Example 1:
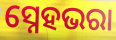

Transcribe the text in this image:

ସ୍ନେହଭରା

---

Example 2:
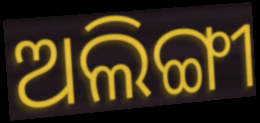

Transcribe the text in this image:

ଅଲିଙ୍ଗୀ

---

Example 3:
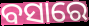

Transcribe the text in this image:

ବସାରେ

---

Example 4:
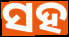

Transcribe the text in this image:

ସହ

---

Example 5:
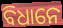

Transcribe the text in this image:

ବିଧାନେ